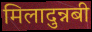
मिलादुन्नबी